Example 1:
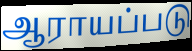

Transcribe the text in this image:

ஆராயப்படு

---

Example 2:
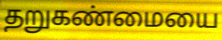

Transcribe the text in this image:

தறுகண்மையை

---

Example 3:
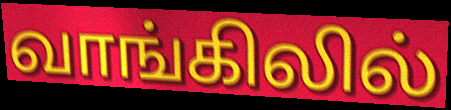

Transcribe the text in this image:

வாங்கிலில்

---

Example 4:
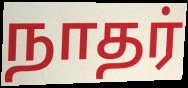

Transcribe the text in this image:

நாதர்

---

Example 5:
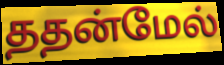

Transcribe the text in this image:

ததன்மேல்